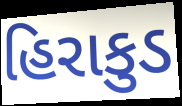
હિરાકુડ